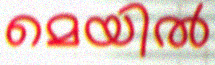
മെയിൽ